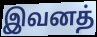
இவனத்